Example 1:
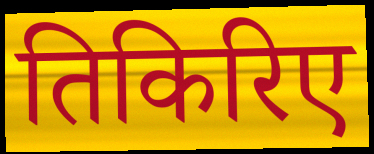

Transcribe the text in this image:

तिकिरिए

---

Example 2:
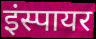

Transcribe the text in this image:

इंस्पायर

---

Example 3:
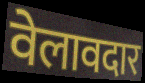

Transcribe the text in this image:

वेलावदार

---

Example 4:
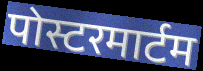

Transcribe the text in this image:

पोस्टरमार्टम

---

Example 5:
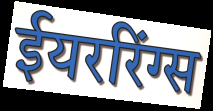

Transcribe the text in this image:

ईयररिंग्स